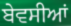
ਬੇਵਸੀਆਂ